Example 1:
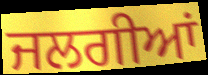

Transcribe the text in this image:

ਜਲਗੀਆਂ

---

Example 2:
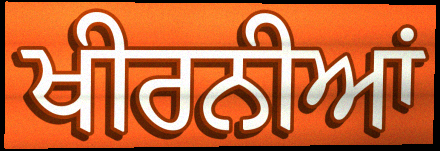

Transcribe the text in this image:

ਖੀਰਨੀਆਂ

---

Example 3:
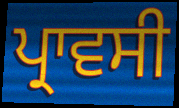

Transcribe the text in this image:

ਪ੍ਰਾਵਸੀ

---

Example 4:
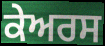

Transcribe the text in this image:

ਕੇਅਰਸ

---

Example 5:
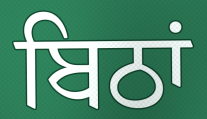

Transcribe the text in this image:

ਬਿਠਾਂ